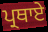
ਪ੍ਰਥਾਏ